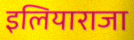
इलियाराजा